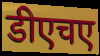
डीएचए